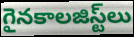
గైనకాలజిస్ట్‌లు